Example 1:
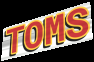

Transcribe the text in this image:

TOMS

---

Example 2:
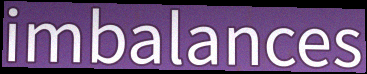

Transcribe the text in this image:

imbalances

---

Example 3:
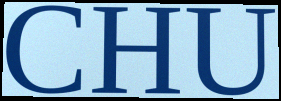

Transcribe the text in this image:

CHU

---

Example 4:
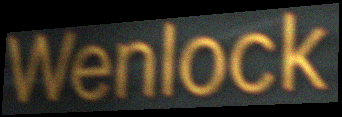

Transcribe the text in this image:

Wenlock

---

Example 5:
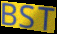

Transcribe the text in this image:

BST